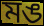
মঙ